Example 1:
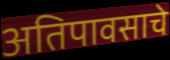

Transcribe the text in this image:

अतिपावसाचे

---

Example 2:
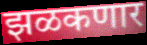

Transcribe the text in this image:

झळकणार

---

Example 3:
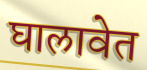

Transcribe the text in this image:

घालावेत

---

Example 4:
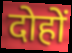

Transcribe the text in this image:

दोहों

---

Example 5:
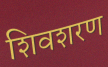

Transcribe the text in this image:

शिवशरण